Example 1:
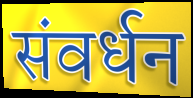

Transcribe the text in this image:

संवर्धन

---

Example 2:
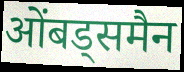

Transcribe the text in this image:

ओंबड्समैन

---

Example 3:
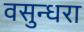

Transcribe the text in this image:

वसुन्धरा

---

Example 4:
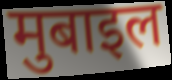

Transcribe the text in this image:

मुबाइल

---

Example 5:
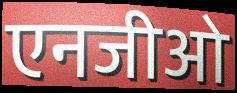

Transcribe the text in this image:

एनजीओ